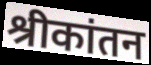
श्रीकांतन